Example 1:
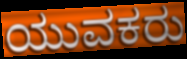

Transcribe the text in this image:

ಯುವಕರು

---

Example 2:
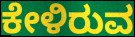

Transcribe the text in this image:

ಕೇಳಿರುವ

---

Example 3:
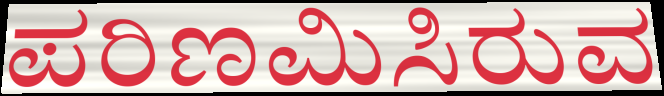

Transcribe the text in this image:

ಪರಿಣಮಿಸಿರುವ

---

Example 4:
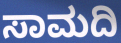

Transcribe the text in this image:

ಸಾಮದಿ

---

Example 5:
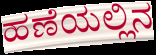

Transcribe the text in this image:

ಹಣೆಯಲ್ಲಿನ